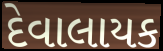
દેવાલાયક